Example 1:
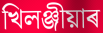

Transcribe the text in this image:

খিলঞ্জীয়াৰ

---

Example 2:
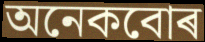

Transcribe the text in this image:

অনেকবোৰ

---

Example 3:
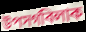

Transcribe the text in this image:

উপসৰ্গবিলাক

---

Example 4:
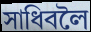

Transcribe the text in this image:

সাধিবলৈ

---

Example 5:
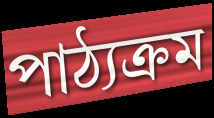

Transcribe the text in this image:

পাঠ্যক্ৰম